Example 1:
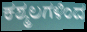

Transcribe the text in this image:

ಕಶ್ಮಲಗಳಿಂದ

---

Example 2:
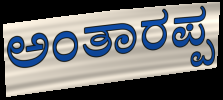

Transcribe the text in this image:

ಅಂತಾರಪ್ಪ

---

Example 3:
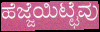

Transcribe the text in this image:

ಹೆಜ್ಜೆಯಿಟ್ಟೆವು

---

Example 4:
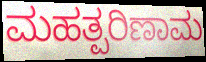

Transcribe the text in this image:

ಮಹತ್ಪರಿಣಾಮ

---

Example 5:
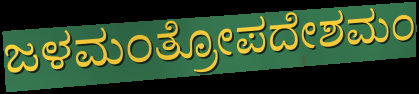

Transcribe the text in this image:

ಜಳಮಂತ್ರೋಪದೇಶಮಂ